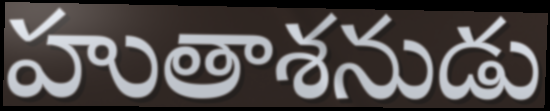
హుతాశనుడు